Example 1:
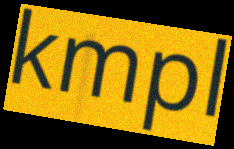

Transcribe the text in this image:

kmpl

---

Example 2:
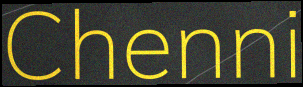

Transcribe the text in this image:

Chenni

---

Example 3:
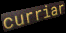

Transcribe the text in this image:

curriar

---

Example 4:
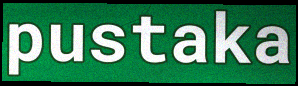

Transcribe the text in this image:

pustaka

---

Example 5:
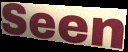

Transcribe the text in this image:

Seen